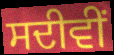
ਸਦੀਵੀਂ